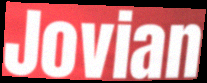
Jovian